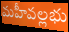
మహీవల్లభు